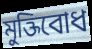
মুক্তিবোধ